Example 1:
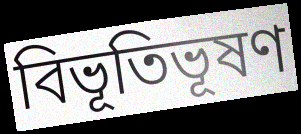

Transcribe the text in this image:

বিভূতিভূষণ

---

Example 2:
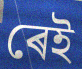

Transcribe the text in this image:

ৰেই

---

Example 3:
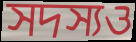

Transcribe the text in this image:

সদস্যও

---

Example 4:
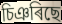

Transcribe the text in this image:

চিঞৰিছে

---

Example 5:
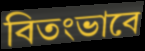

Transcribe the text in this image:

বিতংভাবে